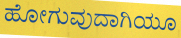
ಹೋಗುವುದಾಗಿಯೂ